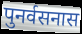
पुनर्वसनास